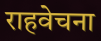
राहवेचना